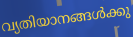
വ്യതിയാനങ്ങൾക്കു